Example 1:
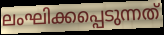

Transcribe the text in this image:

ലംഘിക്കപ്പെടുന്നത്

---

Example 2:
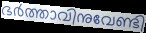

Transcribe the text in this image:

ഭർത്താവിനുവേണ്ടി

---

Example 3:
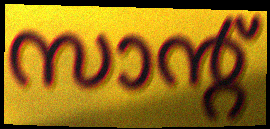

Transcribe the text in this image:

സാന്റ്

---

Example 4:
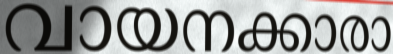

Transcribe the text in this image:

വായനക്കാരാ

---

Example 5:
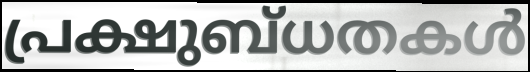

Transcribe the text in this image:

പ്രക്ഷുബ്ധതകൾ